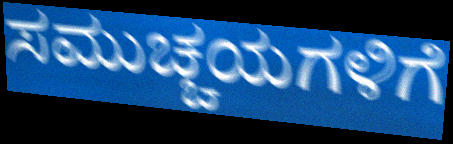
ಸಮುಚ್ಚಯಗಳಿಗೆ